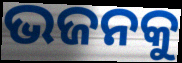
ଭଜନକୁ